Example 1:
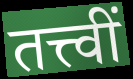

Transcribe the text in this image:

तत्त्वीं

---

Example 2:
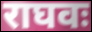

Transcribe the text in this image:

राघवः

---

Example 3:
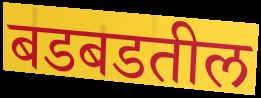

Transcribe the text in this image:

बडबडतील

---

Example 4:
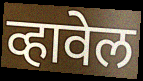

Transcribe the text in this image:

व्हावेल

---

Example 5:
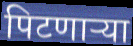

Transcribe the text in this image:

पिटणाऱ्या